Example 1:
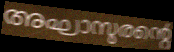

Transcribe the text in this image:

അഘാസുരന്റെ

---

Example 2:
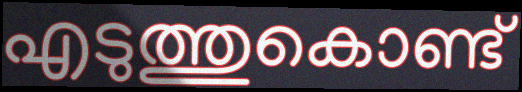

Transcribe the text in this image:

എടുത്തുകൊണ്ട്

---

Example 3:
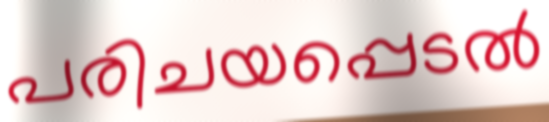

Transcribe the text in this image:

പരിചയപ്പെടൽ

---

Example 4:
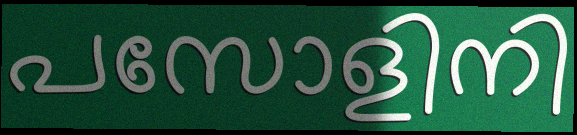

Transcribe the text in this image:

പസോളിനി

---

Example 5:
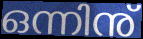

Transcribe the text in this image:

ഒന്നിനു്